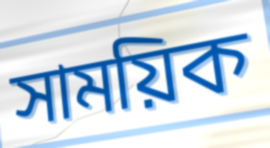
সাময়িক